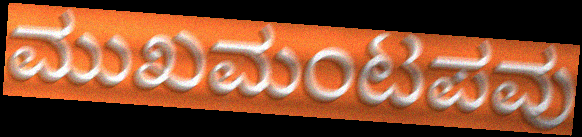
ಮುಖಮಂಟಪವು